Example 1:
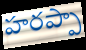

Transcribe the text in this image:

హరప్పా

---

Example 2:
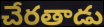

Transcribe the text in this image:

చేరతాడు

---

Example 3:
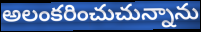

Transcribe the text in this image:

అలంకరించుచున్నాను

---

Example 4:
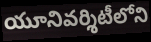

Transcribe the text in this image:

యూనివర్శిటీలోని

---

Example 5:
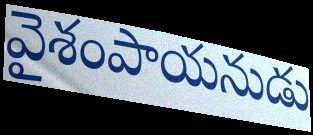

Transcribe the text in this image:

వైశంపాయనుడు